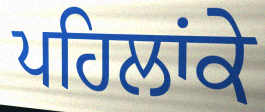
ਪਹਿਲਾਂਕੇ